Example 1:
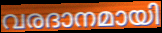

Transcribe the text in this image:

വരദാനമായി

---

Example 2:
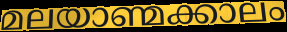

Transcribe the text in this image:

മലയാണ്മക്കാലം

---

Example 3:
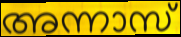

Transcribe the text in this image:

അന്നാസ്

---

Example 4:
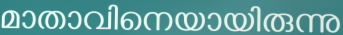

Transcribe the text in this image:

മാതാവിനെയായിരുന്നു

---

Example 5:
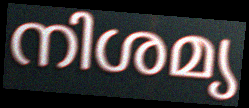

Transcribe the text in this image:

നിശമ്യ